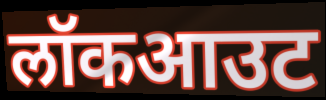
लॉकआउट